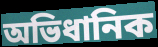
অভিধানিক